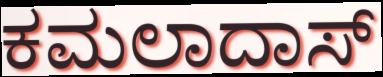
ಕಮಲಾದಾಸ್